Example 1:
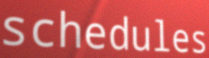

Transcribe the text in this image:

schedules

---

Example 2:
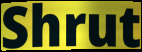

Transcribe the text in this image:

Shrut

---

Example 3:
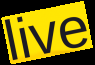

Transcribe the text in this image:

live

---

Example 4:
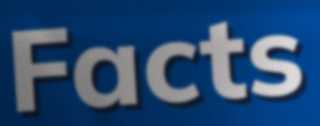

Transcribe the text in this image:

Facts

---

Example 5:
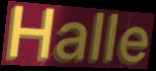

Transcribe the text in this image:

Halle